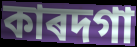
কাৰদগা